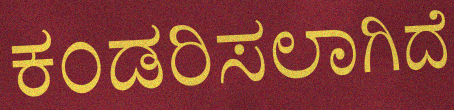
ಕಂಡರಿಸಲಾಗಿದೆ